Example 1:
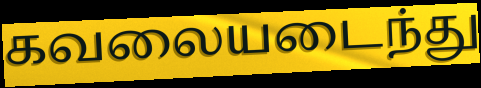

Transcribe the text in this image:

கவலையடைந்து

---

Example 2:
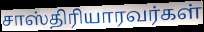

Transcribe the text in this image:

சாஸ்திரியாரவர்கள்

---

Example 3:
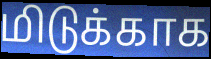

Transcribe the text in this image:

மிடுக்காக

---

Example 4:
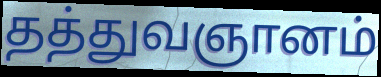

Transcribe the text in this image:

தத்துவஞானம்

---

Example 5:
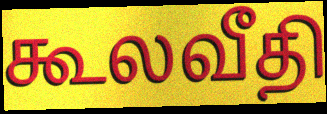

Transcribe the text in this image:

கூலவீதி